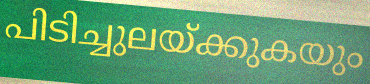
പിടിച്ചുലയ്ക്കുകയും